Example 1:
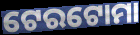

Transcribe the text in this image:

ଟେରଟୋମା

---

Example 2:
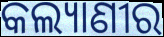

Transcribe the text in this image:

କଲ୍ୟାଣୀର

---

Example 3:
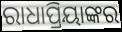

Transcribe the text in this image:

ରାଧାପ୍ରିୟାଙ୍କର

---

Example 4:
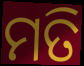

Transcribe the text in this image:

ମତି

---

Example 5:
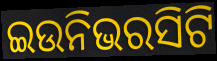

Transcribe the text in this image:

ଇଉନିଭରସିଟି